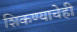
शिकण्याचेही